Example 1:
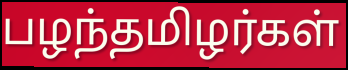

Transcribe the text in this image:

பழந்தமிழர்கள்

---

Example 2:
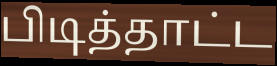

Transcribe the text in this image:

பிடித்தாட்ட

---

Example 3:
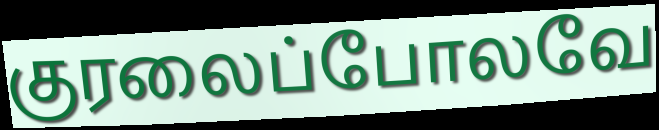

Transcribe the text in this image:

குரலைப்போலவே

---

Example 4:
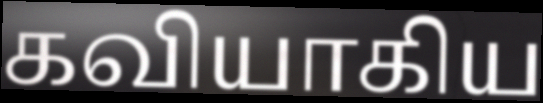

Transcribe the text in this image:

கவியாகிய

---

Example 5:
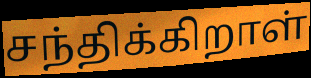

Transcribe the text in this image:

சந்திக்கிறாள்